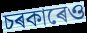
চৰকাৰেও